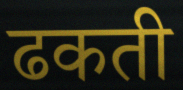
ढकती